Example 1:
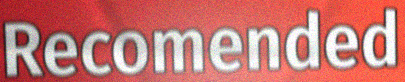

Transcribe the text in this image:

Recomended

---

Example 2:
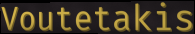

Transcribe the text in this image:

Voutetakis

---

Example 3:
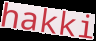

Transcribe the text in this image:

hakki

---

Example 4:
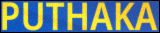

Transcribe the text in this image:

PUTHAKA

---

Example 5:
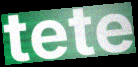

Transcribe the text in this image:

tete